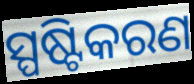
ସ୍ପଷ୍ଟିକରଣ